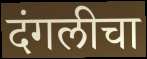
दंगलीचा